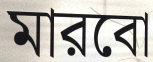
মারবো